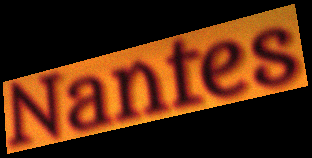
Nantes